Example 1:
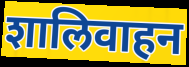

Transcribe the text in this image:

शालिवाहन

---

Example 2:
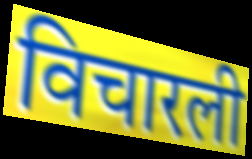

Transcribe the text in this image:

विचारली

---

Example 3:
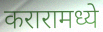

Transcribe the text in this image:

करारामध्ये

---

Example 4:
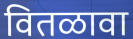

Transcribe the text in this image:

वितळावा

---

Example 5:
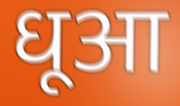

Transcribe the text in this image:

धूआ